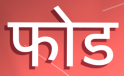
फोड